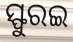
ସ୍ଫୁରଇ